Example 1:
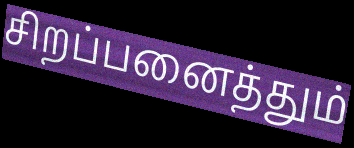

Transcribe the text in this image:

சிறப்பனைத்தும்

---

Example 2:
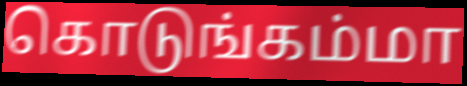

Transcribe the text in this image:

கொடுங்கம்மா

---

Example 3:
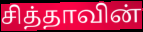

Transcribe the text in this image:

சித்தாவின்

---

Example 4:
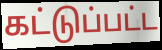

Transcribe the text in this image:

கட்டுப்பட்ட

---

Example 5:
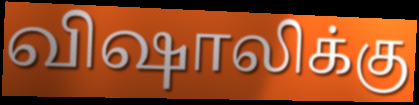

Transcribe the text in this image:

விஷாலிக்கு